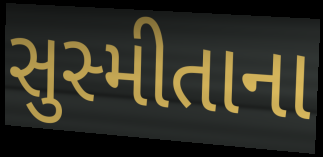
સુસ્મીતાના